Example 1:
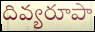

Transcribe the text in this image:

దివ్యరూపా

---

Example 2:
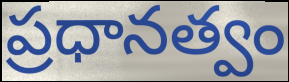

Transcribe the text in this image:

ప్రధానత్వం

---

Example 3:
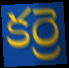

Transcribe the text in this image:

కర్రె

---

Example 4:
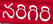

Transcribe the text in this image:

నరిగిరి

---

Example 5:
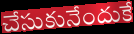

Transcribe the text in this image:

చేసుకునేందుకే